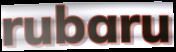
rubaru